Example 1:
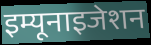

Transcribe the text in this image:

इम्यूनाइजेशन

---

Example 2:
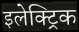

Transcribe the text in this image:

इलेक्ट्रिक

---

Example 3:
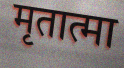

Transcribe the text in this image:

मृतात्मा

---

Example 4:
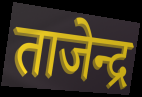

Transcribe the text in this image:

ताजेन्द्र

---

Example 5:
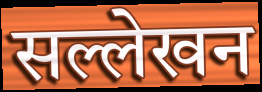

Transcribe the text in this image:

सल्लेखन